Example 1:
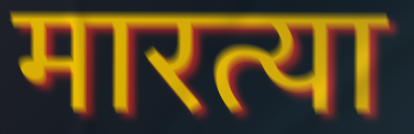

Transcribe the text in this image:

मारत्या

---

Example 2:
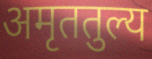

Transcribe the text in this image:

अमृततुल्य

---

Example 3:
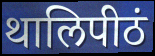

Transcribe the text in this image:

थालिपीठं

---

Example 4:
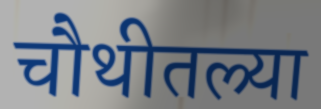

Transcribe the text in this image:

चौथीतल्या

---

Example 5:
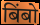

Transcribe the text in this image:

बिंबो